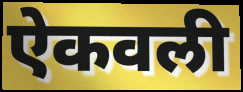
ऐकवली